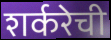
शर्करेची